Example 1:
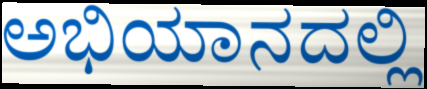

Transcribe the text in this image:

ಅಭಿಯಾನದಲ್ಲಿ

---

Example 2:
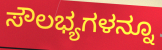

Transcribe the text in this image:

ಸೌಲಭ್ಯಗಳನ್ನೂ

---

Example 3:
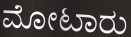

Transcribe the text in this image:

ಮೋಟಾರು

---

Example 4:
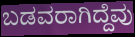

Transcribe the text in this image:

ಬಡವರಾಗಿದ್ದೆವು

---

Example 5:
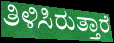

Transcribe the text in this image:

ತಿಳಿಸಿರುತ್ತಾರೆ